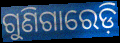
ଗୁଣିଗାରେଡ଼ି